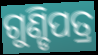
ଗୁଣ୍ଡିପତ୍ର